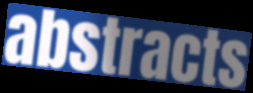
abstracts